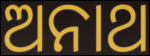
ଅନାଥ